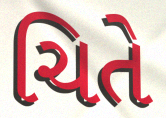
ચિતે